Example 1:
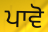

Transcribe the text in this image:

ਪਾਵੋ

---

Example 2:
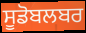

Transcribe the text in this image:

ਸੂਡੋਬਲਬਰ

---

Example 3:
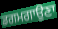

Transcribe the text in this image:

ਡਗਮਗਾਉਣਾ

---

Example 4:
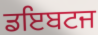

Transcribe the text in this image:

ਡਇਬਟਜ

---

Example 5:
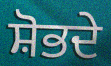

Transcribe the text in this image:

ਸ਼ੋਭਦੇ